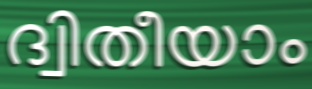
ദ്വിതീയാം